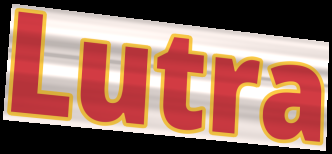
Lutra